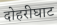
दोहरीघाट